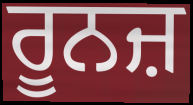
ਰੂਨਜ਼